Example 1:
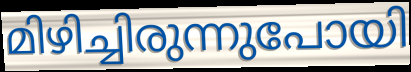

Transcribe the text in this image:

മിഴിച്ചിരുന്നുപോയി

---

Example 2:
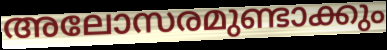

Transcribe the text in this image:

അലോസരമുണ്ടാക്കും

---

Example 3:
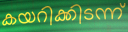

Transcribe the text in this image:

കയറിക്കിടന്ന്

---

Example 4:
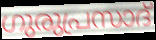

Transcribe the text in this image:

ഗുരുപ്രസാദ്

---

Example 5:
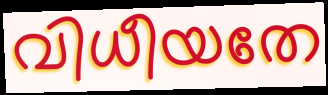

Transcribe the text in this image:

വിധീയതേ